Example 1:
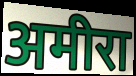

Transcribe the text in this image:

अमीरा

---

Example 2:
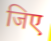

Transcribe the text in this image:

जिए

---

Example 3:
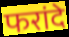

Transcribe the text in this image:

फरांदे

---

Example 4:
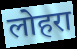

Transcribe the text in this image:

लोहरा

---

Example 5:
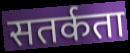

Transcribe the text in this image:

सतर्कता